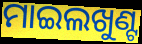
ମାଇଲଖୁଣ୍ଟ